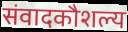
संवादकौशल्य